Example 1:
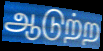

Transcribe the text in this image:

ஆடுற்ற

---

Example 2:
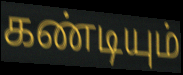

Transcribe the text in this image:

கண்டியும்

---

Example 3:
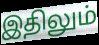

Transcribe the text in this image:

இதிலும்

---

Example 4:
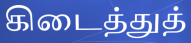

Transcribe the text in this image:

கிடைத்துத்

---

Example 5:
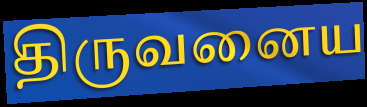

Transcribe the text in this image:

திருவனைய